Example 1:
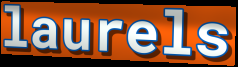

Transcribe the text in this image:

laurels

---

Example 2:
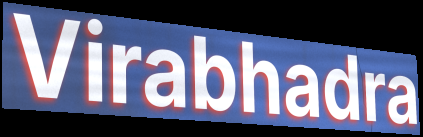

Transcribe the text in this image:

Virabhadra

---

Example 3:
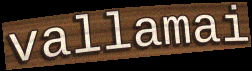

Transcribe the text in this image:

vallamai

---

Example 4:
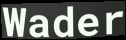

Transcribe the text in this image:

Wader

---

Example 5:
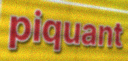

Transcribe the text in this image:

piquant